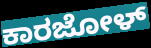
ಕಾರಜೋಳ್